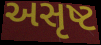
અસૃષ્ટ